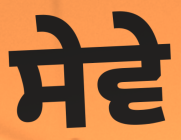
ਸੇਵੇ